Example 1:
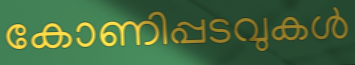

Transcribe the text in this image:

കോണിപ്പടവുകൾ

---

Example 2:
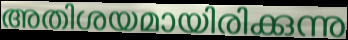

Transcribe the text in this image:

അതിശയമായിരിക്കുന്നു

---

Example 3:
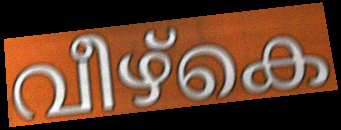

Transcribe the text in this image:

വീഴ്കെ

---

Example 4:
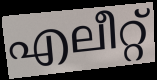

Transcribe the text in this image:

എലീറ്റ്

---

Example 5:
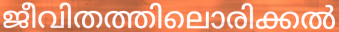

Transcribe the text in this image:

ജീവിതത്തിലൊരിക്കൽ